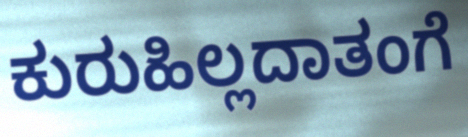
ಕುರುಹಿಲ್ಲದಾತಂಗೆ